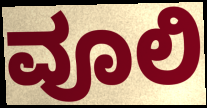
ವೂಲಿ